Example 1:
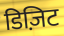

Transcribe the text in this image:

डिज़िट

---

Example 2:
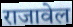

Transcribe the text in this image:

राजावेल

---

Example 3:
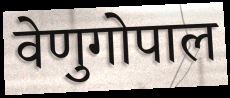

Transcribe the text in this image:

वेणुगोपाल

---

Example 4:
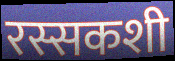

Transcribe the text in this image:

रस्सकशी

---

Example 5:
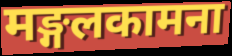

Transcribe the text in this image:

मङ्गलकामना